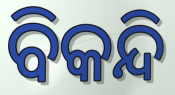
ବିକନ୍ଦି